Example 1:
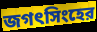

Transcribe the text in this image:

জগৎসিংহের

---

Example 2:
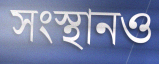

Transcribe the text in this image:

সংস্থানও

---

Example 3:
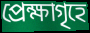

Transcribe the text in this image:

প্রেক্ষাগৃহে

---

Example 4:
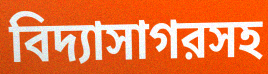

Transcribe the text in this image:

বিদ্যাসাগরসহ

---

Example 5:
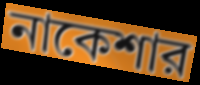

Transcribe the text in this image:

নাকেশার